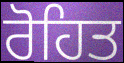
ਰੋਹਿਤ